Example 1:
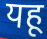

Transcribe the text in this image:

यहू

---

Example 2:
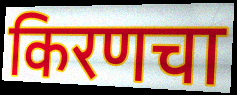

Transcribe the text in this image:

किरणचा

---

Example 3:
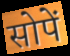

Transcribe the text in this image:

सोपें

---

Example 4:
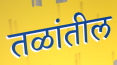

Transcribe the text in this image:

तळांतील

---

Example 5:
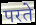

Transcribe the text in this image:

परते